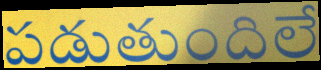
పడుతుందిలే